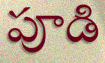
పూడి